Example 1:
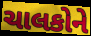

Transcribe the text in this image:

ચાલકોને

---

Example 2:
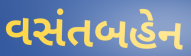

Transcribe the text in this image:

વસંતબહેન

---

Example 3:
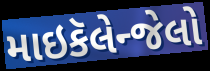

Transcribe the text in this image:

માઇકૅલેન્જેલો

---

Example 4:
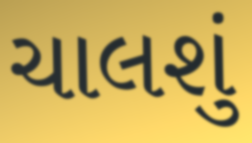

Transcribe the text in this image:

ચાલશું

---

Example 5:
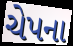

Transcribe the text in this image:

ચેપના